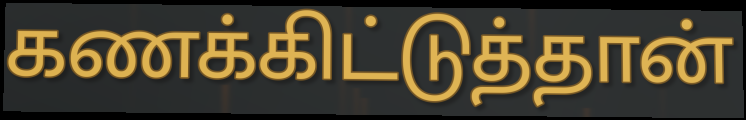
கணக்கிட்டுத்தான்